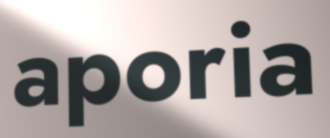
aporia